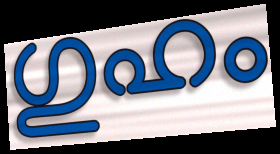
ഗുഹം